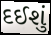
દઈશું